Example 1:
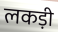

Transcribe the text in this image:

लकड़ी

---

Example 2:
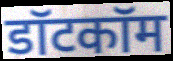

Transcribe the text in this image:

डॉटकॉम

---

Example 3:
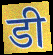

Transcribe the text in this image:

डी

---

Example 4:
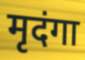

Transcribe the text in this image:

मृदंगा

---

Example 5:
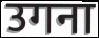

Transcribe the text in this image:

उगना